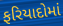
ફરિયાદોમાં